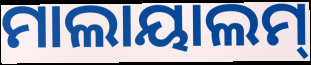
ମାଲାୟାଲମ୍